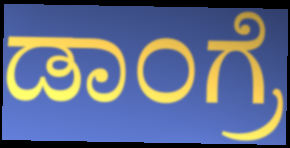
ಡಾಂಗ್ರೆ